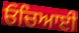
ਓਚਿਆਈ